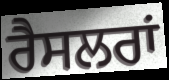
ਰੈਸਲਰਾਂ